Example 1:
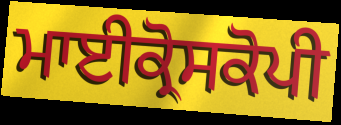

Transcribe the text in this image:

ਮਾਈਕ੍ਰੋਸਕੋਪੀ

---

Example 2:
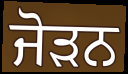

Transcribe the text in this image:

ਜੋੜਨ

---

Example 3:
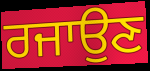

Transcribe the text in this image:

ਰਜਾਉਣ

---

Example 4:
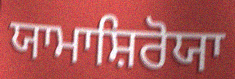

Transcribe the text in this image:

ਯਾਮਾਸ਼ਿਰੋਯਾ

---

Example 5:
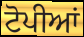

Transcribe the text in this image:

ਟੋਪੀਆਂ